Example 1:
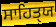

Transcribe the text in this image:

ਸਾਹਿਤੑਯ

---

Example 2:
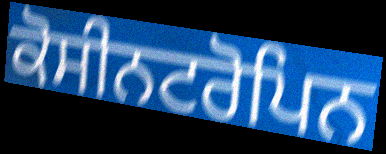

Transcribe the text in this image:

ਕੋਸੀਨਟਰੋਪਿਨ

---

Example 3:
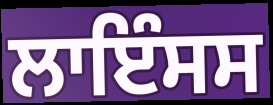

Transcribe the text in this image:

ਲਾਇੰਸਸ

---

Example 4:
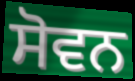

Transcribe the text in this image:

ਸੋਵਨ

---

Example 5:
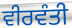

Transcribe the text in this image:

ਵੀਰਵੰਤੀ